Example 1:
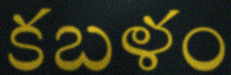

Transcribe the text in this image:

కబళం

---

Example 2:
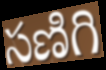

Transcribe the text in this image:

సణిగి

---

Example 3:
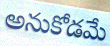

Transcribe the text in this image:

అనుకోడమే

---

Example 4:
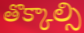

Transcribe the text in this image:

తొక్కాల్సి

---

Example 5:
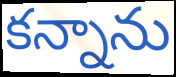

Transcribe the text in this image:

కన్నాను